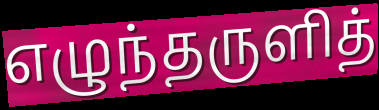
எழுந்தருளித்